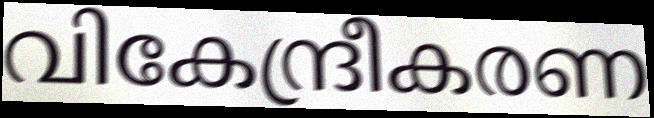
വികേന്ദ്രീകരണ